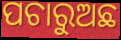
ପଚାରୁଅଛ